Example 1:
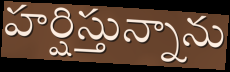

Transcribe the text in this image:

హర్షిస్తున్నాను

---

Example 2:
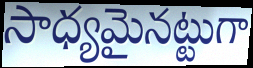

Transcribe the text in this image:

సాధ్యమైనట్టుగా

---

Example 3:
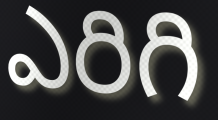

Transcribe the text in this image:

ఎరిగి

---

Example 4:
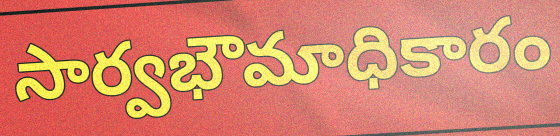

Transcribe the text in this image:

సార్వభౌమాధికారం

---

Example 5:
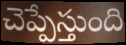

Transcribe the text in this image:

చెప్పేస్తుంది